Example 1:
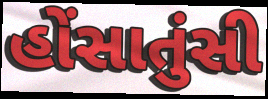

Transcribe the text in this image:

હોંસાતુંસી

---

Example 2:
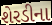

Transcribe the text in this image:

શેરડીના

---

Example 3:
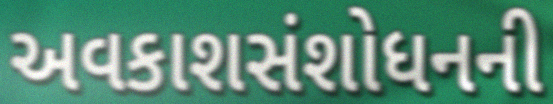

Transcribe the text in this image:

અવકાશસંશોધનની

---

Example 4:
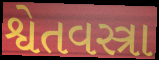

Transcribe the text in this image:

શ્વેતવસ્ત્રા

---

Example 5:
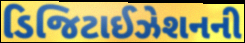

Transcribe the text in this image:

ડિજિટાઈઝેશનની